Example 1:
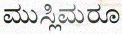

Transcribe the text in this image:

ಮುಸ್ಲಿಮರೂ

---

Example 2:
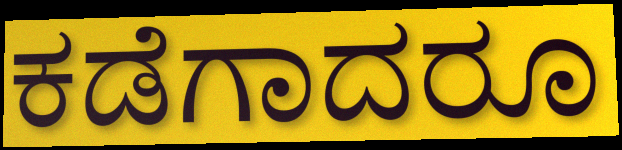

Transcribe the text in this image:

ಕಡೆಗಾದರೂ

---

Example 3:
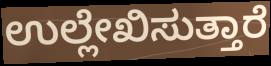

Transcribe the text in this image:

ಉಲ್ಲೇಖಿಸುತ್ತಾರೆ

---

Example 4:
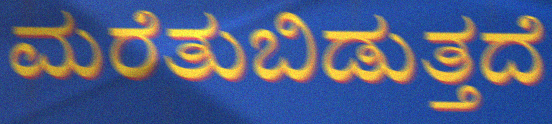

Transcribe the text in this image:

ಮರೆತುಬಿಡುತ್ತದೆ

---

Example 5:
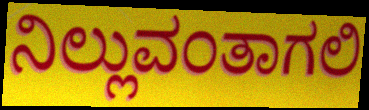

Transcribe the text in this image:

ನಿಲ್ಲುವಂತಾಗಲಿ